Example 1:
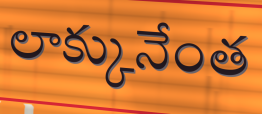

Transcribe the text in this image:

లాక్కునేంత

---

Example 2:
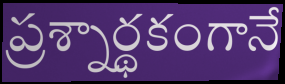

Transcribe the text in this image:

ప్రశ్నార్థకంగానే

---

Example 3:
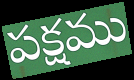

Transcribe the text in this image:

పక్షము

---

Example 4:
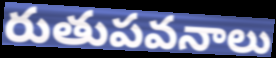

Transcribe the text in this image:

రుతుపవనాలు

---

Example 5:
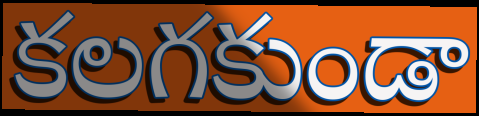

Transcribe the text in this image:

కలగకుండా